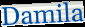
Damila